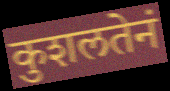
कुशलतेनं